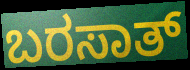
ಬರಸಾತ್